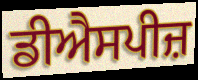
ਡੀਐਸਪੀਜ਼